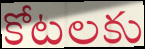
కోటలకు